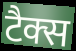
टैक्‍स